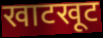
खाटखूट